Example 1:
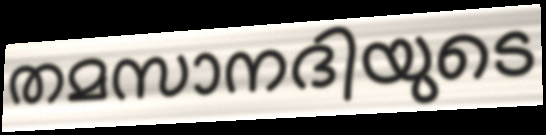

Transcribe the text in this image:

തമസാനദിയുടെ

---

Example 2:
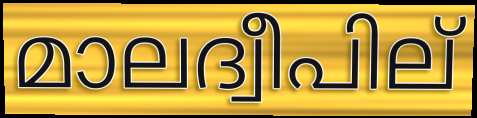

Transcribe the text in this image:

മാലദ്വീപില്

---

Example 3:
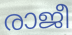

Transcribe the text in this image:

രാജീ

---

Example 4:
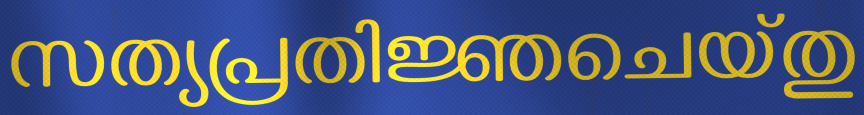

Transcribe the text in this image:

സത്യപ്രതിജ്ഞചെയ്തു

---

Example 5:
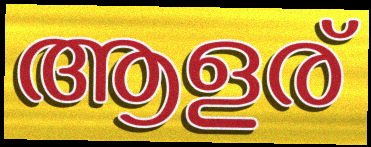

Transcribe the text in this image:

ആളര്